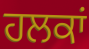
ਹਲਕਾਂ